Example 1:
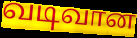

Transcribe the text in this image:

வடிவான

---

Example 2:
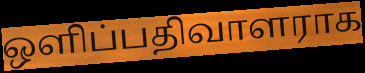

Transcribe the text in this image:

ஒளிப்பதிவாளராக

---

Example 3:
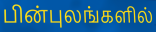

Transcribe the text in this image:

பின்புலங்களில்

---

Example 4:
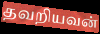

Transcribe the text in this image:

தவறியவன்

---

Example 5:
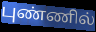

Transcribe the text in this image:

புண்ணில்